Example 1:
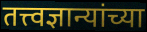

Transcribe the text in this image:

तत्त्वज्ञान्यांच्या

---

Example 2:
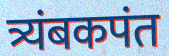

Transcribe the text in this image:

त्र्यंबकपंत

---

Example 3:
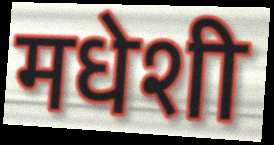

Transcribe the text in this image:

मधेशी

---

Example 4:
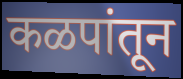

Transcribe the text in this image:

कळपांतून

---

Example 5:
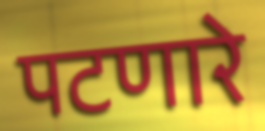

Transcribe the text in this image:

पटणारे